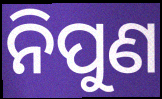
ନିପୁଣ